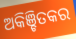
ଅକିଞ୍ଚିତକର